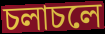
চলাচলে